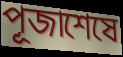
পূজাশেষে